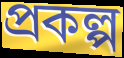
প্ৰকল্প